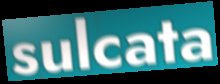
sulcata